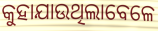
କୁହାଯାଉଥିଲାବେଳେ